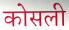
कोसली